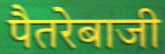
पैतरेबाजी